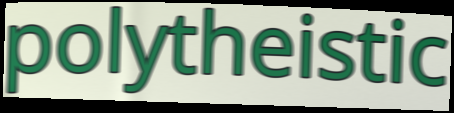
polytheistic